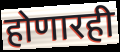
होणारही